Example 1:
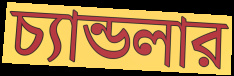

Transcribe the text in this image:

চ্যান্ডলার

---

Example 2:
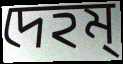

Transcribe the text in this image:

দেহম্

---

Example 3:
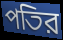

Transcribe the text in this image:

পতির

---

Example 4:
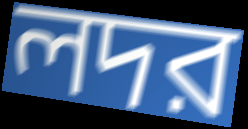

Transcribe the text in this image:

লদর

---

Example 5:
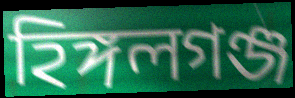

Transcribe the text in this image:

হিঙ্গলগঞ্জ